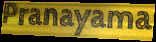
Pranayama